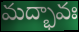
మద్భావః